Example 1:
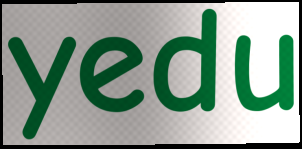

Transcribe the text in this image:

yedu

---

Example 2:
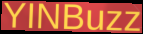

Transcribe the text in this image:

YINBuzz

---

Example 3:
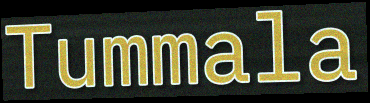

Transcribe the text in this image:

Tummala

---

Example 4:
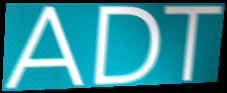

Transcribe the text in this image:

ADT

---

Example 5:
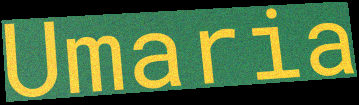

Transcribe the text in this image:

Umaria